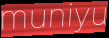
muniyu